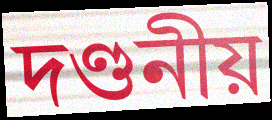
দণ্ডনীয়